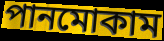
পানমোকাম